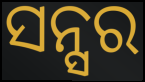
ସନ୍ସର